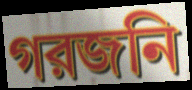
গরজনি